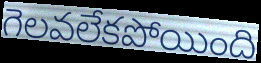
గెలవలేకపోయింది